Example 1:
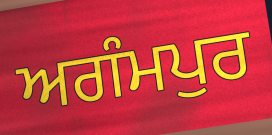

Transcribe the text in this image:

ਅਗੰਮਪੁਰ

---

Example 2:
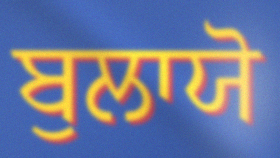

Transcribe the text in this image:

ਬੁਲਾਯੋ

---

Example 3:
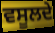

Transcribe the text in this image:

ਵਸੂਲਦੇ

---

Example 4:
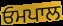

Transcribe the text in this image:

ਓਮਪਾਲ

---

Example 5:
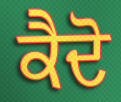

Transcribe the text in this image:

ਕੈਦੋ